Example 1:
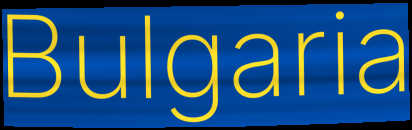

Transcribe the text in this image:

Bulgaria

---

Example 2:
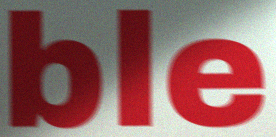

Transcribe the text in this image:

ble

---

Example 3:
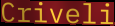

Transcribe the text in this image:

Criveli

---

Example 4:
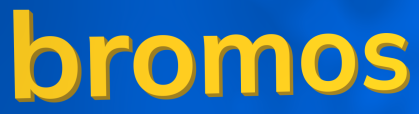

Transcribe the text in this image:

bromos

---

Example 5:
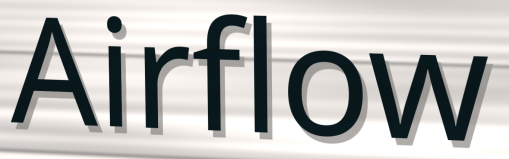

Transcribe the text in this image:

Airflow